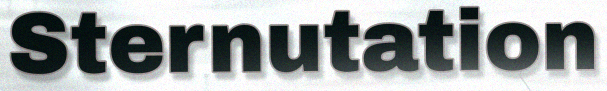
Sternutation